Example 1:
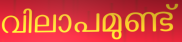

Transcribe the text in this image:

വിലാപമുണ്ട്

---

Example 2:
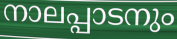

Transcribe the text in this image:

നാലപ്പാടനും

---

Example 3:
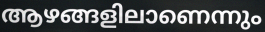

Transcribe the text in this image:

ആഴങ്ങളിലാണെന്നും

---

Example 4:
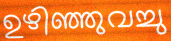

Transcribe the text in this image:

ഉഴിഞ്ഞുവച്ചു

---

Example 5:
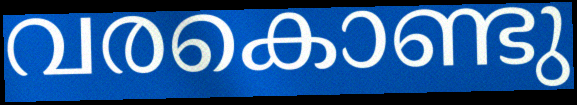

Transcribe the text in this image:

വരകൊണ്ടു